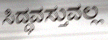
ಸಿದ್ಧವಸ್ತುವಲ್ಲ